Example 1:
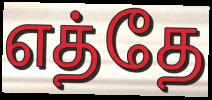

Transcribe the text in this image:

எத்தே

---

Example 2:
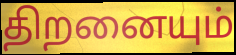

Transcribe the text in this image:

திறனையும்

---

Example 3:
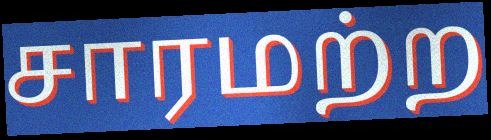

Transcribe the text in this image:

சாரமற்ற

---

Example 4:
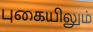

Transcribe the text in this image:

புகையிலும்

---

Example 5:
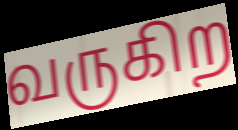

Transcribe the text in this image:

வருகிற